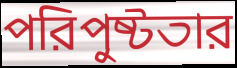
পরিপুষ্টতার